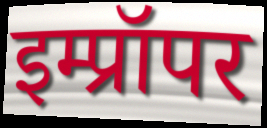
इम्प्रॉपर